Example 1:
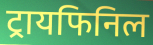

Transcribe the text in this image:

ट्रायफिनिल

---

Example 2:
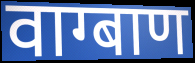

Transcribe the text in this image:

वाग्बाण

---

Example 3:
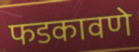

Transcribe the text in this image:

फडकावणे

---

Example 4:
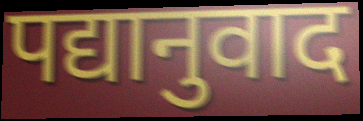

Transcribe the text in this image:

पद्यानुवाद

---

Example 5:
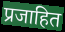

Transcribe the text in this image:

प्रजाहित